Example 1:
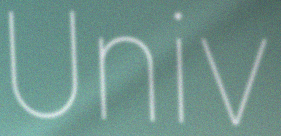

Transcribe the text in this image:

Univ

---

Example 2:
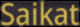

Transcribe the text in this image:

Saikat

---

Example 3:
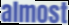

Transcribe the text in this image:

almost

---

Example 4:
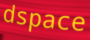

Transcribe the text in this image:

dspace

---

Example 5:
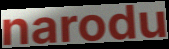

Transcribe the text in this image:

narodu